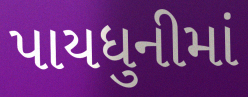
પાયધુનીમાં